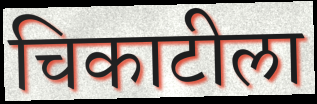
चिकाटीला